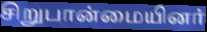
சிறுபான்மையினர்